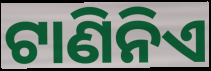
ଟାଣିନିଏ